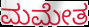
ಮಮೇತ